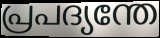
പ്രപദ്യന്തേ